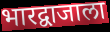
भारद्वाजाला